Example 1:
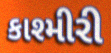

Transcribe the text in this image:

કાશ્મીરી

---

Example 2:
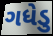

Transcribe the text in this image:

ગધેડુ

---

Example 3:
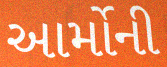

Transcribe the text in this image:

આર્મોની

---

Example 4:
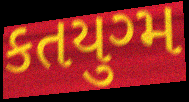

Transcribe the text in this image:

કતયુગ્મ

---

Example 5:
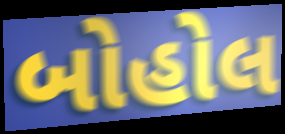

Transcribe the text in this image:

બોહોલ